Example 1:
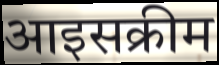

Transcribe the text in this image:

आइसक्रीम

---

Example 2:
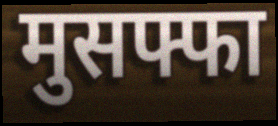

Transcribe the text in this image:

मुसफ्फा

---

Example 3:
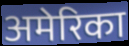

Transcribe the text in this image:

अमेरिका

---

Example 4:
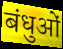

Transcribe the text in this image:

बंधुओं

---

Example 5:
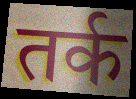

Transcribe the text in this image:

तर्क